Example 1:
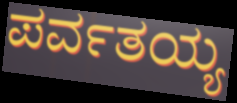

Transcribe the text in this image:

ಪರ್ವತಯ್ಯ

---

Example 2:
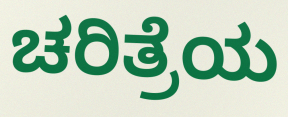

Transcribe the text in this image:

ಚರಿತ್ರೆಯ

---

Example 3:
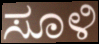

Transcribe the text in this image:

ಸೂಳಿ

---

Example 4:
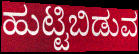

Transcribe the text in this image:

ಹುಟ್ಟಿಬಿಡುವ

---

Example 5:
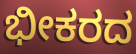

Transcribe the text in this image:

ಭೀಕರದ